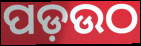
ପଡ଼ଉଠ